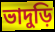
ভাদুড়ি